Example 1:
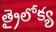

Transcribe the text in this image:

త్రైలోక్య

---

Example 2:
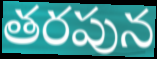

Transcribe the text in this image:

తరపున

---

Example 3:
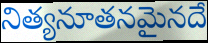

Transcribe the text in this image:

నిత్యనూతనమైనదే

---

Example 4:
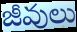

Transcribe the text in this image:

జీవులు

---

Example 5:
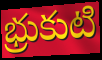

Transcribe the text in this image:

భ్రుకుటి